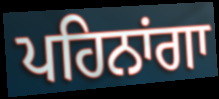
ਪਹਿਨਾਂਗਾ